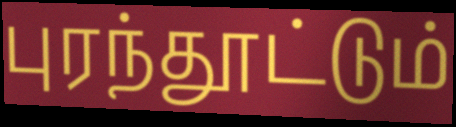
புரந்தூட்டும்